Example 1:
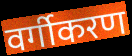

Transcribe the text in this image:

वर्गीकरण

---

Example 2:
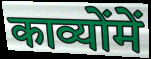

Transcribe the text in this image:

काव्योंमें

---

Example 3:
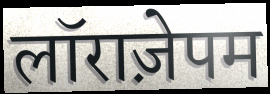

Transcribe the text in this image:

लॉराज़ेपम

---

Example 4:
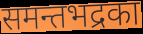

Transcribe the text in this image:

समन्तभद्रका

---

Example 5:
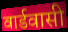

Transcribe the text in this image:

वार्डवासी